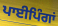
ਪਾਈਪਿੰਗਾਂ